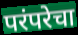
परंपरेचा